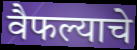
वैफल्याचे